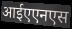
आईएएनएस